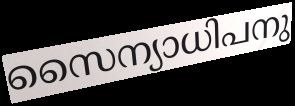
സൈന്യാധിപനു